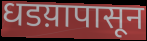
धडय़ापासून